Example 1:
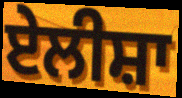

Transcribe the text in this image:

ਏਲੀਸ਼ਾ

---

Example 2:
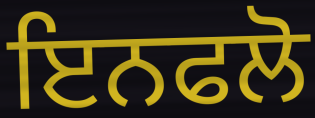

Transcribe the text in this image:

ਇਨਫਲੋ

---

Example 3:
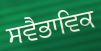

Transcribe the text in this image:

ਸਵੈਭਾਵਿਕ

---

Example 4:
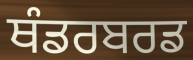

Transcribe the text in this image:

ਥੰਡਰਬਰਡ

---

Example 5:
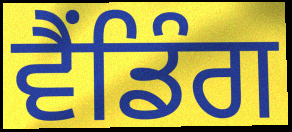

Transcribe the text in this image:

ਵੈਂਡਿੰਗ